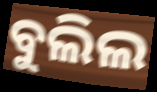
ବୁଲିଲ